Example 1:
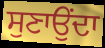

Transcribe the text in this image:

ਸੁਣਾਉਂਦਾ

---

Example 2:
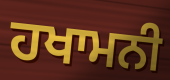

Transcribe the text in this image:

ਹਖਾਮਨੀ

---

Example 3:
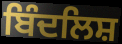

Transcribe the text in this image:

ਬਿੰਦਲਿਸ਼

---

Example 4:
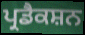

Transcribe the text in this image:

ਪ੍ਰਡੈਕਸ਼ਨ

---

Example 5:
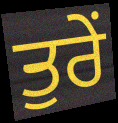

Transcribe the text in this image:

ਤੁਰੇਂ